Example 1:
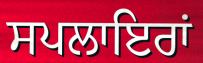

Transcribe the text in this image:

ਸਪਲਾਇਰਾਂ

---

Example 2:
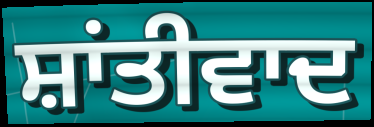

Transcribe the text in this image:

ਸ਼ਾਂਤੀਵਾਦ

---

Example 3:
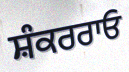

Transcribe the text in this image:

ਸ਼ੰਕਰਰਾਓ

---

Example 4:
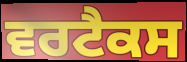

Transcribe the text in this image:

ਵਰਟੈਕਸ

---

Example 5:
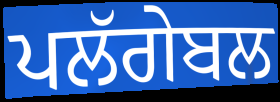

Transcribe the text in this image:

ਪਲੱਗੇਬਲ